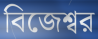
বিজেশ্বর